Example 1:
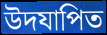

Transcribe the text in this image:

উদযাপিত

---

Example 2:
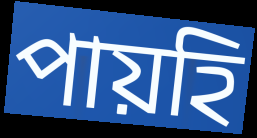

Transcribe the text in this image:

পায়হি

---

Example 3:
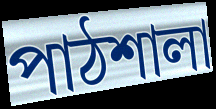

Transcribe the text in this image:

পাঠশালা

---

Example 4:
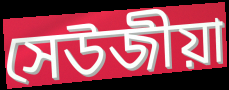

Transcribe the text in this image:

সেউজীয়া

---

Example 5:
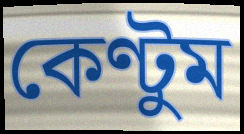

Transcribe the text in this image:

কেণ্টুম